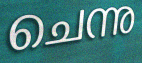
ചെന്നു